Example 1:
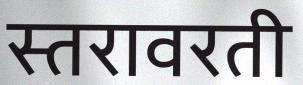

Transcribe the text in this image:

स्तरावरती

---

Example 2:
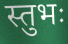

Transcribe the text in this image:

स्तुभः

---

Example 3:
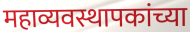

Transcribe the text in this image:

महाव्यवस्थापकांच्या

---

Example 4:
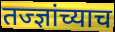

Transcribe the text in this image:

तज्ज्ञांच्याच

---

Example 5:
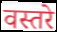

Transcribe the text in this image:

वस्तरे